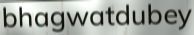
bhagwatdubey